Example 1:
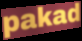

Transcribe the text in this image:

pakad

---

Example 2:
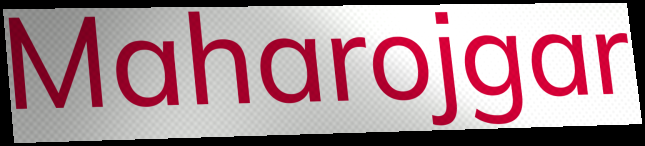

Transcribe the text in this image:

Maharojgar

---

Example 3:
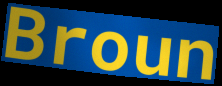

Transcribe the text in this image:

Broun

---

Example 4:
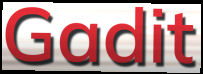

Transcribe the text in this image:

Gadit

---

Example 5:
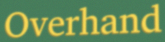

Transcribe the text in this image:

Overhand